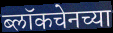
ब्लॉकचेनच्या